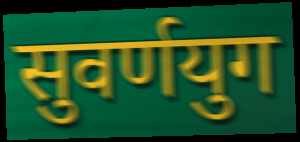
सुवर्णयुग